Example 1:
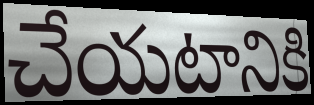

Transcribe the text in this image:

చేయటానికి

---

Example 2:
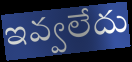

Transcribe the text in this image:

ఇవ్వలేదు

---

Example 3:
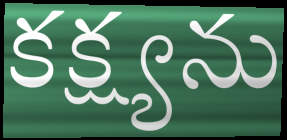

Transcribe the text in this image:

కక్ష్యను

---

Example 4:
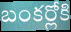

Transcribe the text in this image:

బంకర్లోకి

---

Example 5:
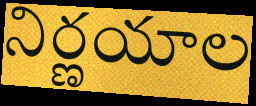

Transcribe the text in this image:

నిర్ణయాల